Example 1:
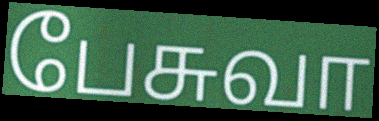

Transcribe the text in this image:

பேசுவா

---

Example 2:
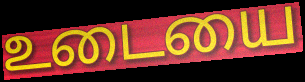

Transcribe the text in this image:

உடையை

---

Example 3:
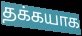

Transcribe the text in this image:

தக்கயாக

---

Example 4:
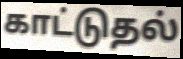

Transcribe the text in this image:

காட்டுதல்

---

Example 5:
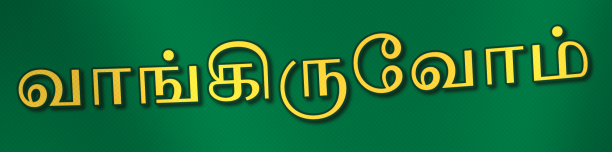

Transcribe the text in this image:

வாங்கிருவோம்